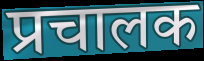
प्रचालक